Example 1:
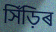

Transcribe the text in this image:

সিঁড়িৰ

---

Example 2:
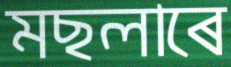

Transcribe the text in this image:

মছলাৰে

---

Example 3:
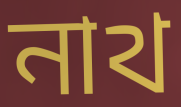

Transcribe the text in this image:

নাথ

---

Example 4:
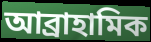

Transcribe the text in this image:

আব্ৰাহামিক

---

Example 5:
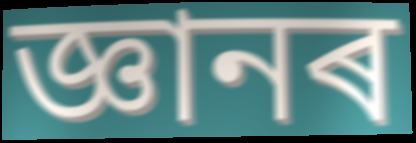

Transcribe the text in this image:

জ্ঞানৰ